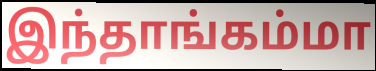
இந்தாங்கம்மா